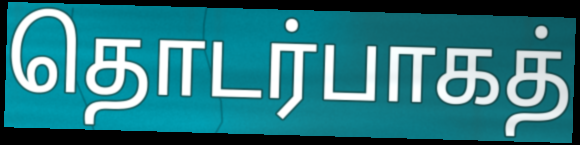
தொடர்பாகத்